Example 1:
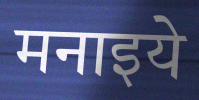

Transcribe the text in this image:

मनाइये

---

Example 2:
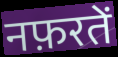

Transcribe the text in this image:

नफ़रतें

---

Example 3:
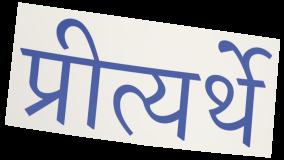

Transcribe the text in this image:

प्रीत्यर्थे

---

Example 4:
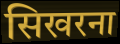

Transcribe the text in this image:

सिखरना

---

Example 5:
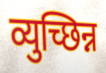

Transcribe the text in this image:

व्युच्छिन्न